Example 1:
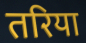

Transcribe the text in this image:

तरिया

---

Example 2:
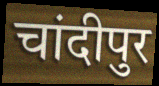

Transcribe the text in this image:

चांदीपुर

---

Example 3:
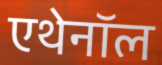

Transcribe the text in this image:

एथेनॉल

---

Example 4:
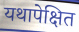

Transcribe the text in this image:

यथापेक्षित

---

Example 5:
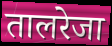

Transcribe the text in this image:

तालरेजा